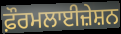
ਫ਼ੌਰਮਲਾਈਜ਼ੇਸ਼ਨ